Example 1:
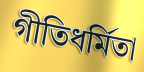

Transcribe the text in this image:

গীতিধর্মিতা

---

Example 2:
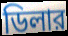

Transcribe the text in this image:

ডিলার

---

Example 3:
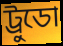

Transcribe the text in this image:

ট্রুডো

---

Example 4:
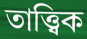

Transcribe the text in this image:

তাত্ত্বিক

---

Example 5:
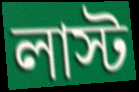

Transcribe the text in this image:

লাস্ট